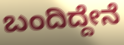
ಬಂದಿದ್ದೇನೆ